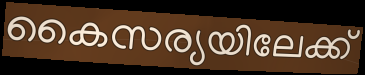
കൈസര്യയിലേക്ക്